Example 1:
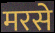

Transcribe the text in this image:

मरसे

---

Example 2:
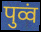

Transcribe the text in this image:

पुव्वं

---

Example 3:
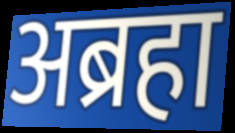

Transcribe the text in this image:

अब्रहा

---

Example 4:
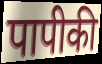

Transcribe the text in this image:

पापीकी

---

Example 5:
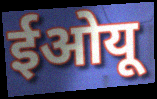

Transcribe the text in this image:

ईओयू